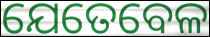
ଯେତେବେଳ